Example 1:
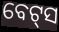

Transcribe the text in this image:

ବେଟ୍‌ସ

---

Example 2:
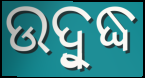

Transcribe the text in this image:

ଉଦ୍ୱୁଦ୍ଧ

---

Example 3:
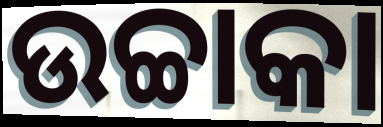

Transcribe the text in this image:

ଉଚ୍ଚାକା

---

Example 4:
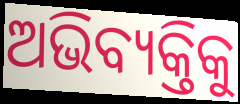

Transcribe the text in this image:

ଅଭିବ୍ୟକ୍ତିକୁ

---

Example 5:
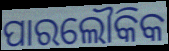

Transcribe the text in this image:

ପାରଲୌକିକ